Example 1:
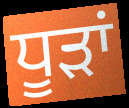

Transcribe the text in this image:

ਧੂਡ਼ਾਂ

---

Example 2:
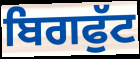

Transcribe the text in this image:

ਬਿਗਫੁੱਟ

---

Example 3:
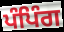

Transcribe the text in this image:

ਪੰਪਿੰਗ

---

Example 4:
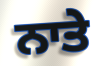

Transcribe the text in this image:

ਨਾਤੇ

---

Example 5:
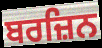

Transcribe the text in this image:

ਬਰਜ਼ਿਨ